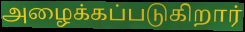
அழைக்கப்படுகிறார்